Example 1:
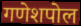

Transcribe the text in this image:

गणेशपोल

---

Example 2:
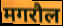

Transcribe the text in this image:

मगरौल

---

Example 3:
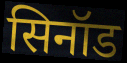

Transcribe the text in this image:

सिनॉड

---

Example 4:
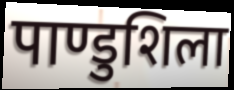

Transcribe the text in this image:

पाण्डुशिला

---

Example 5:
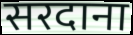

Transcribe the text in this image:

सरदाना